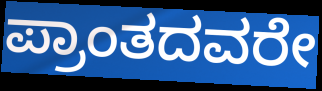
ಪ್ರಾಂತದವರೇ